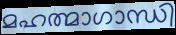
മഹത്മാഗാന്ധി